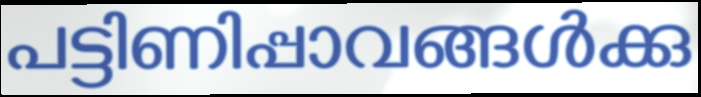
പട്ടിണിപ്പാവങ്ങൾക്കു